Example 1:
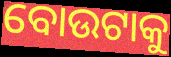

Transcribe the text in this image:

ବୋଉଟାକୁ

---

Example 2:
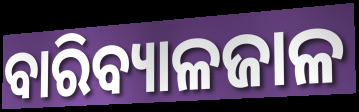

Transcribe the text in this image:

ବାରିବ୍ୟାଳଜାଳ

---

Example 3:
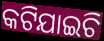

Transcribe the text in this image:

କଟିଯାଇଚି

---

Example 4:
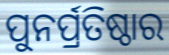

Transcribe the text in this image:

ପୁନର୍ପ୍ରତିଷ୍ଠାର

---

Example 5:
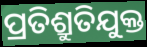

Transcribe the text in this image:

ପ୍ରତିଶ୍ରୁତିଯୁକ୍ତ